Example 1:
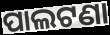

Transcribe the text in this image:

ପାଲଟଣା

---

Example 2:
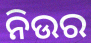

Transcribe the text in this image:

ନିଉର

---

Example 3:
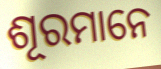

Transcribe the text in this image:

ଶୂରମାନେ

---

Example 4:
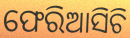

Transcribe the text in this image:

ଫେରିଆସିଚି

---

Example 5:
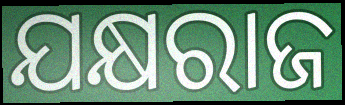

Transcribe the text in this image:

ଯକ୍ଷରାଜ